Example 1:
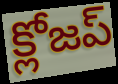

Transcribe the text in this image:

క్లోజప్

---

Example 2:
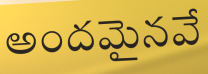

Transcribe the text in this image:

అందమైనవే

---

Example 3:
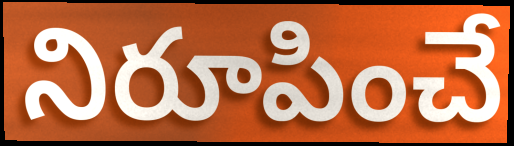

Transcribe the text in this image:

నిరూపించే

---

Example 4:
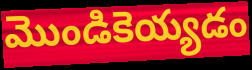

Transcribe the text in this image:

మొండికెయ్యడం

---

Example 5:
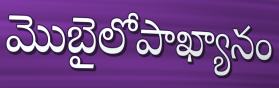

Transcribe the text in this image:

మొబైలోపాఖ్యానం